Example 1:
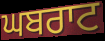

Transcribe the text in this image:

ਘਬਰਾਟ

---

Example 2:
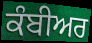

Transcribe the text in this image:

ਕੰਬੀਅਰ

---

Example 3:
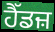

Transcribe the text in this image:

ਹੈੱਡਜ਼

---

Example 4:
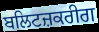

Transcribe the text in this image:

ਬਲਿਟਜ਼ਕਰੀਗ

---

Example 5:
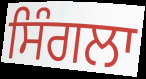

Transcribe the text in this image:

ਸਿੰਗਲਾ